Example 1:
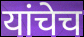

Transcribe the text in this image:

यांचेच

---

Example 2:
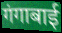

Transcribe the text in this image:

गंगाबाई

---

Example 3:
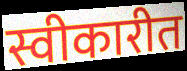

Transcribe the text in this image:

स्वीकारीत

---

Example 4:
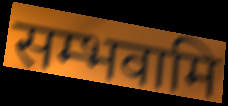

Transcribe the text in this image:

सम्भवामि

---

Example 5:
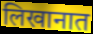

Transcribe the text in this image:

लिखानात